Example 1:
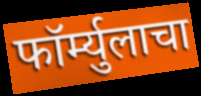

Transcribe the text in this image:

फॉर्म्युलाचा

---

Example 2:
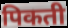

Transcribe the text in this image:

पिकती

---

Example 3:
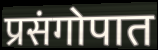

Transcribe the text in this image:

प्रसंगोपात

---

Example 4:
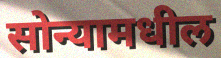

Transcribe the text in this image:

सोन्यामधील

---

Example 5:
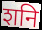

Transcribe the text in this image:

शनि